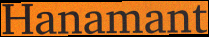
Hanamant